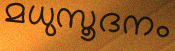
മധുസൂദനം